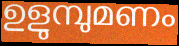
ഉളുമ്പുമണം